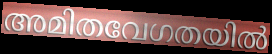
അമിതവേഗതയിൽ